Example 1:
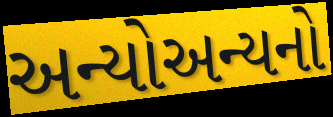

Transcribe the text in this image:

અન્યોઅન્યનો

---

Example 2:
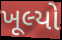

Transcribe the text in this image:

ખૂલ્યો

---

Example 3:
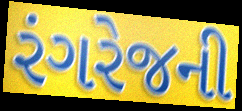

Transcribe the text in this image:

રંગરેજની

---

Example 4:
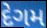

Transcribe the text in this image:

દેગમ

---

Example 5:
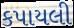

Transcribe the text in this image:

કપાયલી